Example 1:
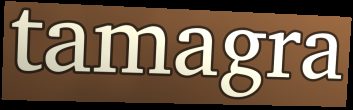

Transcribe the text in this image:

tamagra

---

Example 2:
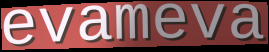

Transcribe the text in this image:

evameva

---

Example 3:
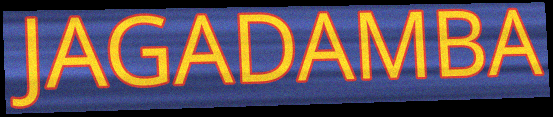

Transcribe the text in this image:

JAGADAMBA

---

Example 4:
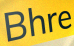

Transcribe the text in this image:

Bhre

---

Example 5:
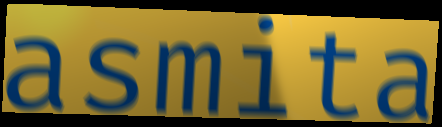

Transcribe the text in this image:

asmita